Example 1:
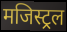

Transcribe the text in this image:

मजिस्ट्रल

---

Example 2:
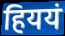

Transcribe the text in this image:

हिययं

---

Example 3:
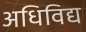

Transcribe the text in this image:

अधिविद्य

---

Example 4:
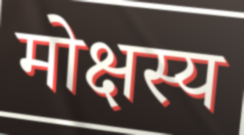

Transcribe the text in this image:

मोक्षस्य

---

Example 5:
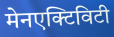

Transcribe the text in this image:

मेनएक्टिविटी